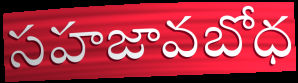
సహజావబోధ